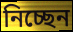
নিচ্ছেন